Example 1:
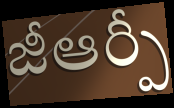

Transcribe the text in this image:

జీఆర్పీ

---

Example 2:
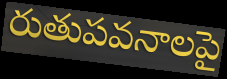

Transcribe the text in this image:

రుతుపవనాలపై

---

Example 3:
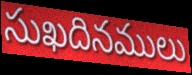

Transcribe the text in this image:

సుఖదినములు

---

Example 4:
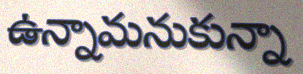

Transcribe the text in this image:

ఉన్నామనుకున్నా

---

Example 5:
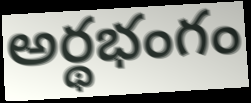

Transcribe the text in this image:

అర్థభంగం